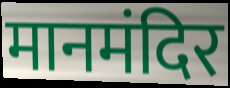
मानमंदिर